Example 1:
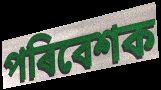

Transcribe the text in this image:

পৰিবেশক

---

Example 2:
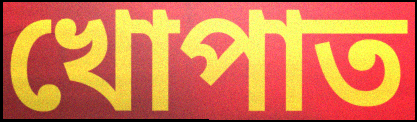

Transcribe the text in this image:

খোপাত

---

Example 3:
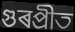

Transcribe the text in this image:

গুৰপ্ৰীত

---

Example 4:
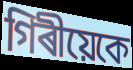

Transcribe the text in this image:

গিৰীয়েকে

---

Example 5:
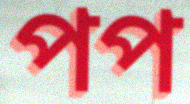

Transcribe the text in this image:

পপ